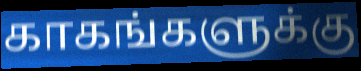
காகங்களுக்கு